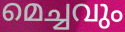
മെച്ചവും